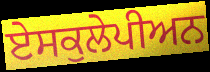
ਏਸਕੁਲੇਪੀਅਨ